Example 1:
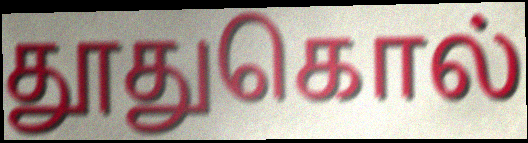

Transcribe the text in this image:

தூதுகொல்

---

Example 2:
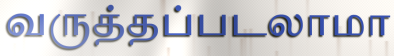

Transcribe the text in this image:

வருத்தப்படலாமா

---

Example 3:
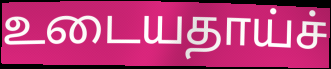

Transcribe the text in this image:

உடையதாய்ச்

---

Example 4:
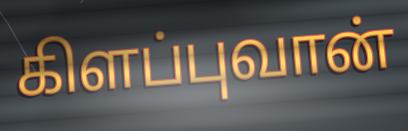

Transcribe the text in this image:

கிளப்புவான்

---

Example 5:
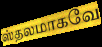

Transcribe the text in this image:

ஸ்தலமாகவே